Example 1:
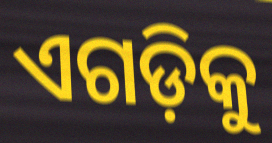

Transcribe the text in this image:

ଏଗଡ଼ିକୁ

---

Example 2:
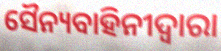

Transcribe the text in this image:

ସୈନ୍ୟବାହିନୀଦ୍ୱାରା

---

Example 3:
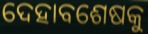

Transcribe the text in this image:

ଦେହାବଶେଷକୁ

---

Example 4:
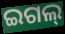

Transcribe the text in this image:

ଇଗଲ୍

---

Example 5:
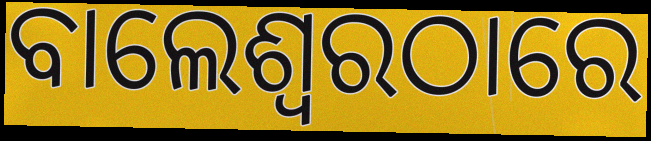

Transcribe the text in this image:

ବାଲେଶ୍ଵରଠାରେ